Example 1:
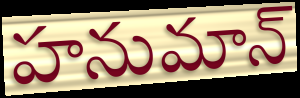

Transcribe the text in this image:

హనుమాన్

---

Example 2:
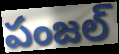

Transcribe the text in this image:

పంజల్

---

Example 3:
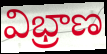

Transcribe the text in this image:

విభ్రాణ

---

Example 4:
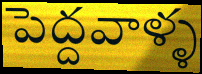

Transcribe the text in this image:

పెద్దవాళ్ళ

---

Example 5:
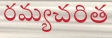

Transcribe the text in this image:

రమ్యచరిత